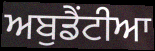
ਅਬੁਡੈਂਟੀਆ